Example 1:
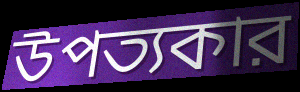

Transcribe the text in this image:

উপত্যকার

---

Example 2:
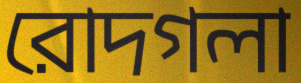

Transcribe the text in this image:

রোদগলা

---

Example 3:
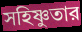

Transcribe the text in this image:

সহিষ্ণুতার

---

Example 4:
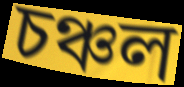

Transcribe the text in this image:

চঞ্চল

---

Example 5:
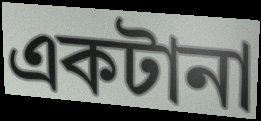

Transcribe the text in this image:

একটানা